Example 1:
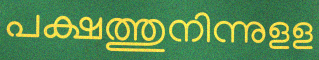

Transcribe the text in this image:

പക്ഷത്തുനിന്നുളള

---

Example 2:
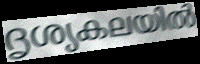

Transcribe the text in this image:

ദൃശ്യകലയിൽ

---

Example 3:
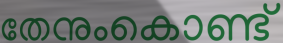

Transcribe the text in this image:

തേനുംകൊണ്ട്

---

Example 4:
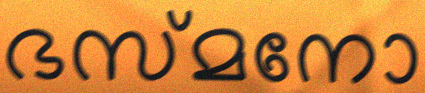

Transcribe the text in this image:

ഭസ്മനോ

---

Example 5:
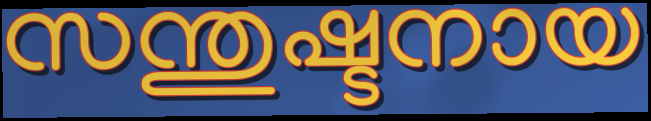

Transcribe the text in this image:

സന്തുഷ്ടനായ